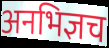
अनभिज्ञच